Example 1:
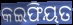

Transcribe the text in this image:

କଇଫିୟତ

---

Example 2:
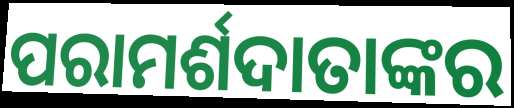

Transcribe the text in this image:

ପରାମର୍ଶଦାତାଙ୍କର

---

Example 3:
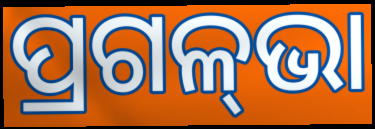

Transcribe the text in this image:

ପ୍ରଗଳ୍‌ଭା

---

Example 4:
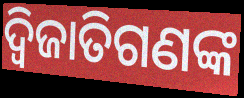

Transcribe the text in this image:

ଦ୍ୱିଜାତିଗଣଙ୍କ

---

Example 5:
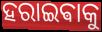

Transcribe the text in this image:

ହରାଇଵାକୁ